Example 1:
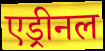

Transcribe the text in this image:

एड्रीनल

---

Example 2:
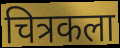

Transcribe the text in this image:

चित्रकला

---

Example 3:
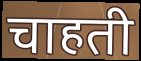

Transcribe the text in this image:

चाहती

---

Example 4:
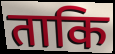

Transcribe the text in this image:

ताकि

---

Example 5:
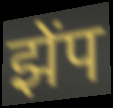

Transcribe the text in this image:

झेंप